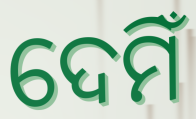
ଦେମିଁ